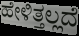
ಹೇಳಿತ್ತಲ್ಲದೆ